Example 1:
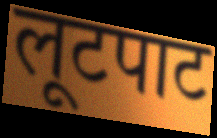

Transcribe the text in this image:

लूटपाट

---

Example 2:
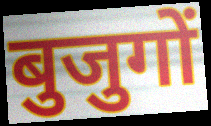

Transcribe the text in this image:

बुजुगों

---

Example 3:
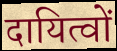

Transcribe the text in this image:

दायित्वों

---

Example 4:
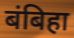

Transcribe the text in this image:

बंबिहा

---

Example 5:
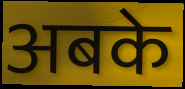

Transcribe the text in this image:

अबके